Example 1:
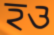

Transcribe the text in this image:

হও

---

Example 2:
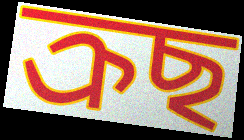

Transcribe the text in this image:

ক্ৰছ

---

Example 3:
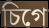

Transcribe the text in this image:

চিগে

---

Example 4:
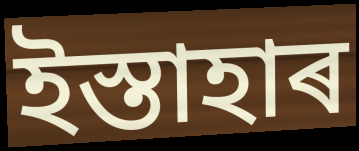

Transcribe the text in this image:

ইস্তাহাৰ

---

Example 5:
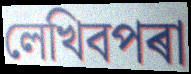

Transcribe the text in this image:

লেখিবপৰা